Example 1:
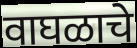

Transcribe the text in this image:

वाघळाचे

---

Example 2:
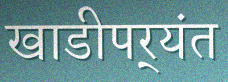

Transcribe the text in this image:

खाडीपर्यंत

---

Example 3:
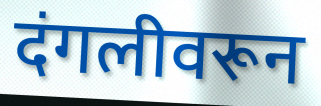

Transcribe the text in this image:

दंगलीवरून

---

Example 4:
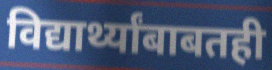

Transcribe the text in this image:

विद्यार्थ्यांबाबतही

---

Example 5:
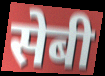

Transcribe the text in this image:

सेबी